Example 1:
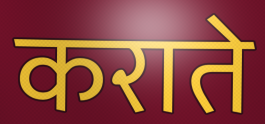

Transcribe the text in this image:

कराते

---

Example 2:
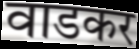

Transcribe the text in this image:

वाडकर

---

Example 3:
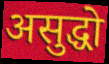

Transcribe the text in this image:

असुद्धो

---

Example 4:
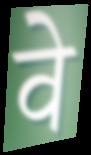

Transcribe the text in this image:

वे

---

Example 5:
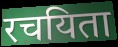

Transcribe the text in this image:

रचयिता